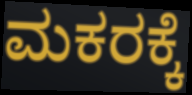
ಮಕರಕ್ಕೆ